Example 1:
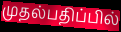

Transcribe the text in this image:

முதல்பதிப்பில்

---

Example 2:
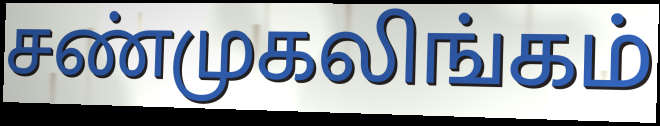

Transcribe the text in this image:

சண்முகலிங்கம்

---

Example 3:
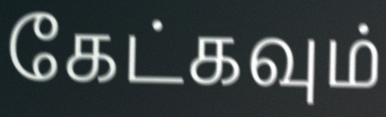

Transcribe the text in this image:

கேட்கவும்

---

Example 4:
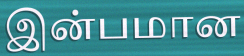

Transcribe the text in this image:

இன்பமான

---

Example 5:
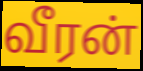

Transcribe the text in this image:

வீரன்